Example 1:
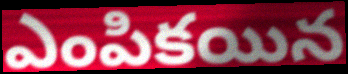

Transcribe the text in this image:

ఎంపికయిన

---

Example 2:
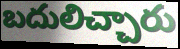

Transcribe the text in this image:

బదులిచ్చారు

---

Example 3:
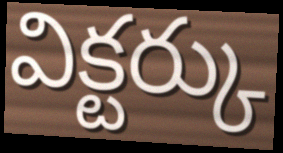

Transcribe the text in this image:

విక్టర్కు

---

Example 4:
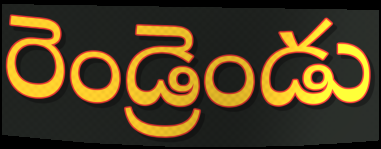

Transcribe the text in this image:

రెండ్రెండు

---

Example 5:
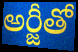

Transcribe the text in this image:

అర్జీతో